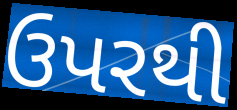
ઉપરથી